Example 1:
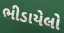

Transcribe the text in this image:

ભીડાયેલો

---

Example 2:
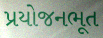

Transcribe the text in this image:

પ્રયોજનભૂત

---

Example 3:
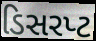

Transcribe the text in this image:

ડિસરપ્ટ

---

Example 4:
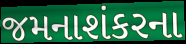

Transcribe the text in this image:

જમનાશંકરના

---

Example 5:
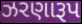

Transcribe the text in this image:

ઝરણારૂપ